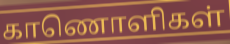
காணொளிகள்